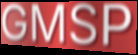
GMSP